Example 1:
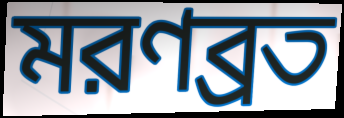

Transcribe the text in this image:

মরণব্রত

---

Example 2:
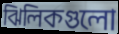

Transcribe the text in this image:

ঝিলিকগুলো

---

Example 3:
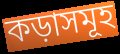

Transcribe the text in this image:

কড়াসমূহ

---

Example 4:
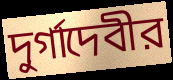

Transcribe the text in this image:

দুর্গাদেবীর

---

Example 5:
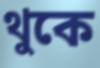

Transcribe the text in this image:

থুকে